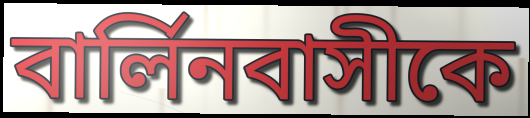
বার্লিনবাসীকে